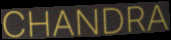
CHANDRA